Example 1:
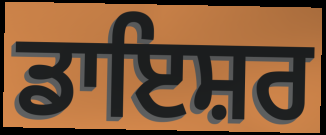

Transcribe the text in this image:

ਡਾਇਸ਼ਰ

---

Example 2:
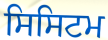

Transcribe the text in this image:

ਸਿਸਿਟਮ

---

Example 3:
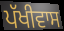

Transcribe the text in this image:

ਪੱਖੀਵਾਸ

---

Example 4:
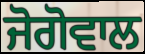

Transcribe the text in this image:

ਜੋਗੋਵਾਲ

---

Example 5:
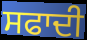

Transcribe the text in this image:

ਸਫਾਦੀ